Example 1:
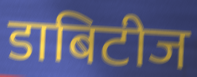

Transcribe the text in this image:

डाबिटीज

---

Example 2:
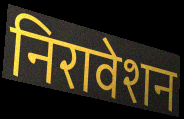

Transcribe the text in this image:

निरावेशन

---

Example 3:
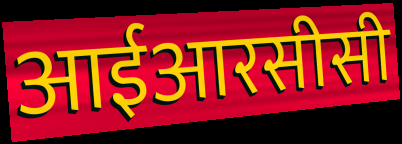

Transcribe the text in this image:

आईआरसीसी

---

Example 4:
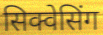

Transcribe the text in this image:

सिक्वेसिंग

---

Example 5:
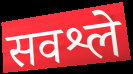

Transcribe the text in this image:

सवश्ले